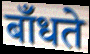
बाँधते